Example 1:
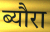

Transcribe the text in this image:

ब्यौरा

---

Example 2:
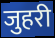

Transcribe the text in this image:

जुहरी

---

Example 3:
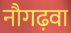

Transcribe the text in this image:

नौगढ़वा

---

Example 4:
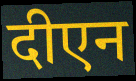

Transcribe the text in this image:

दीएन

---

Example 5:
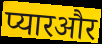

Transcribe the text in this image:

प्यारऔर